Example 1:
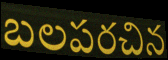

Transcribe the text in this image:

బలపరచిన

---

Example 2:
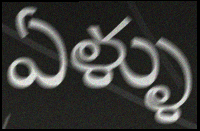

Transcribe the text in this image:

ఏళ్ళు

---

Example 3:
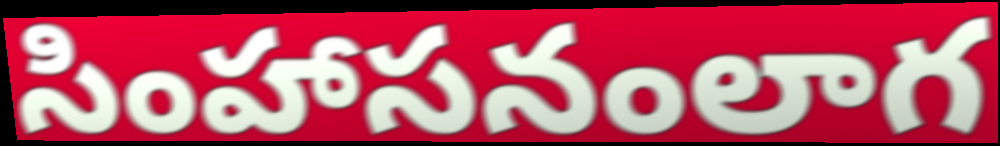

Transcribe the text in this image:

సింహాసనంలాగ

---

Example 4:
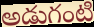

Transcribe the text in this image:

అడుగంటి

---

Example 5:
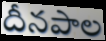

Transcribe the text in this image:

దీనపాల